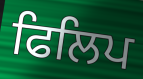
ਫਿਲਿਪ